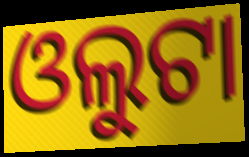
ଓଲୁଟା